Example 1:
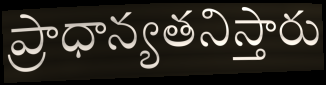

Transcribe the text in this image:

ప్రాధాన్యతనిస్తారు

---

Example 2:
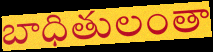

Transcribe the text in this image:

బాధితులంతా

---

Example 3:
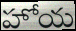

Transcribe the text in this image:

హోయ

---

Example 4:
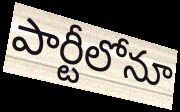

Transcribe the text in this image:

పార్టీలోనూ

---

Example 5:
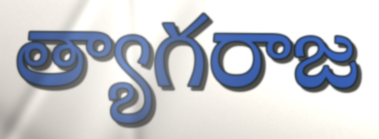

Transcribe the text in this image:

త్యాగరాజ